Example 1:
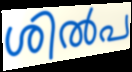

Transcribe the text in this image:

ശിൽപ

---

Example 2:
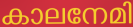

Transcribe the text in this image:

കാലനേമി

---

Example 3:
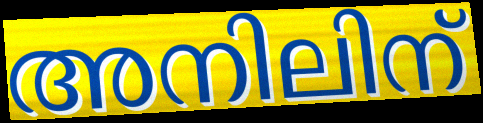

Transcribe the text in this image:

അനിലിന്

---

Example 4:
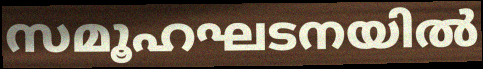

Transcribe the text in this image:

സമൂഹഘടനയിൽ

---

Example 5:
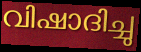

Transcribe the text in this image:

വിഷാദിച്ചു